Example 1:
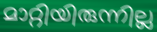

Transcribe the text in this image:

മാറ്റിയിരുന്നില്ല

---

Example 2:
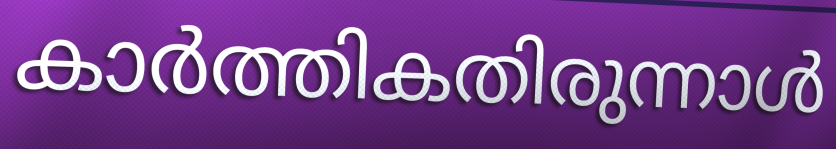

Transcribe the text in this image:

കാർത്തികതിരുന്നാൾ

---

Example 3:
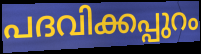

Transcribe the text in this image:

പദവിക്കപ്പുറം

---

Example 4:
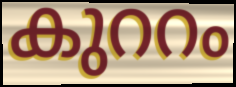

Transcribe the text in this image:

കുററം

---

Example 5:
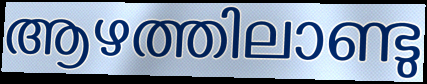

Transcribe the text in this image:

ആഴത്തിലാണ്ടു